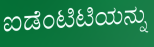
ಐಡೆಂಟಿಟಿಯನ್ನು